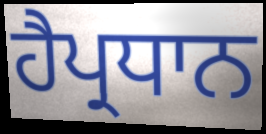
ਹੈਪ੍ਰਧਾਨ